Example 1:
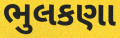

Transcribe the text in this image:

ભુલકણા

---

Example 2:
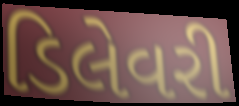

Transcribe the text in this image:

ડિલેવરી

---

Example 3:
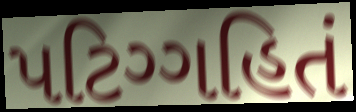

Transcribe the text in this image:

પટિગ્ગહિતં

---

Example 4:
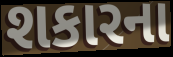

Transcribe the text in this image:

શકારના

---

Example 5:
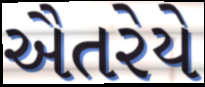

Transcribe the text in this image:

ઐતરેયે